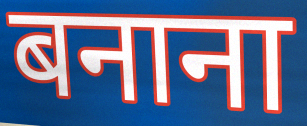
बनाना